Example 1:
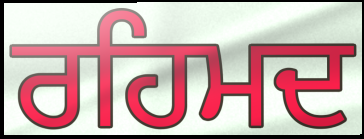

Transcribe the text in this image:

ਰਹਿਮਦ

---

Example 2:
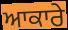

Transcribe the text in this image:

ਆਕਾਰੇ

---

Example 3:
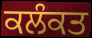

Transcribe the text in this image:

ਕਲੰਕਤ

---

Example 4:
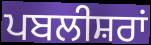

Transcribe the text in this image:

ਪਬਲੀਸ਼ਰਾਂ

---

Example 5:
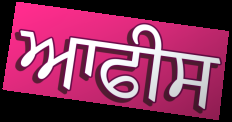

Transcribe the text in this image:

ਆਫੀਸ